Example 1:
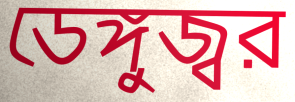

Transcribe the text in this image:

ডেঙ্গুজ্বর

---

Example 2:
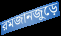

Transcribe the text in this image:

রমজানজুড়ে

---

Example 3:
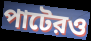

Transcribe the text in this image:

পাটেরও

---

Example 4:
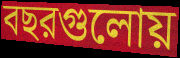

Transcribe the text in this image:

বছরগুলোয়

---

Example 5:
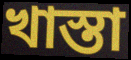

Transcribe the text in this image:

খাস্তা